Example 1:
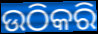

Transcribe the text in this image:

ଉଠିକରି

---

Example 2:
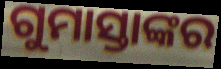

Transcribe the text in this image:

ଗୁମାସ୍ତାଙ୍କର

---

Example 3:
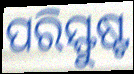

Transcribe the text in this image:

ପରିସ୍ଫୁଷ୍ଟ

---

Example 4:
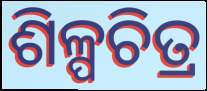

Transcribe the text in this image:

ଶିଳ୍ପଚିତ୍ର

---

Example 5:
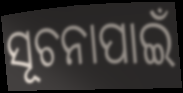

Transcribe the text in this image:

ସୂଚନାପାଇଁ